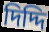
দিদ্দি